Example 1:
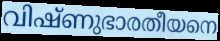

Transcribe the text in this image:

വിഷ്ണുഭാരതീയനെ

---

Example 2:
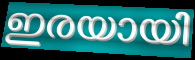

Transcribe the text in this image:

ഇരയായി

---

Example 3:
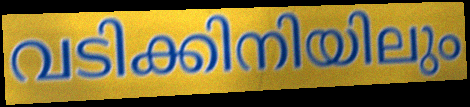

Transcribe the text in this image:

വടിക്കിനിയിലും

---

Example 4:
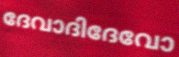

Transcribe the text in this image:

ദേവാദിദേവോ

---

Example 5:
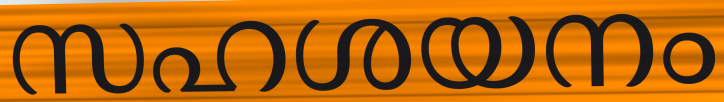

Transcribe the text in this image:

സഹശയനം